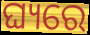
ଘ୍ୟରେ